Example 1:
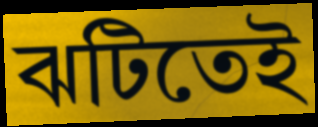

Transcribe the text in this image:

ঝটিতেই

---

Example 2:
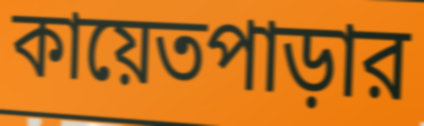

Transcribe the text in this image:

কায়েতপাড়ার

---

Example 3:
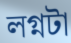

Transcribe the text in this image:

লগ্নটা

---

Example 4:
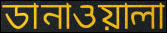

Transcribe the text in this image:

ডানাওয়ালা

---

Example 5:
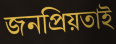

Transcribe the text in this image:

জনপ্রিয়তাই